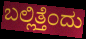
ಬಲ್ಲಿತ್ತೆಂದು